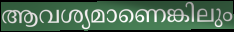
ആവശ്യമാണെങ്കിലും